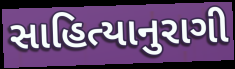
સાહિત્યાનુરાગી